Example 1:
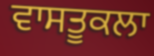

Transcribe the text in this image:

ਵਾਸਤੂਕਲਾ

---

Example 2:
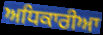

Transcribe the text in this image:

ਅਧਿਕਾਰੀਆ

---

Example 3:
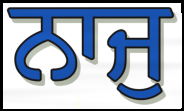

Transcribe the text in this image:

ਨਾਜੁ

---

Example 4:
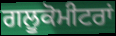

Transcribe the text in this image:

ਗਲੂਕੋਮੀਟਰਾਂ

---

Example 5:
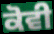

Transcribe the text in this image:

ਕੋਵੀ